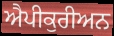
ਐਪੀਕੁਰੀਅਨ